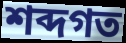
শব্দগত